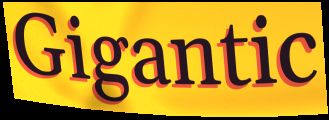
Gigantic